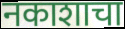
नकाशाचा